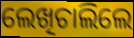
ଲେଖିଚାଲିଲେ